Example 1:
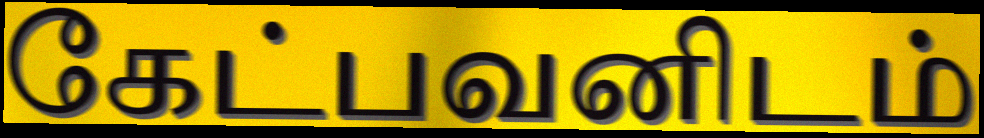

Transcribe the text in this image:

கேட்பவனிடம்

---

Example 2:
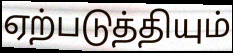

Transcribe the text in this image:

ஏற்படுத்தியும்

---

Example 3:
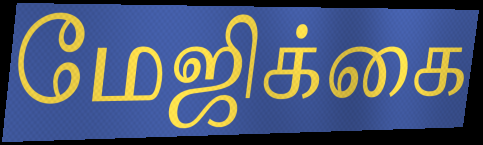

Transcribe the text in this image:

மேஜிக்கை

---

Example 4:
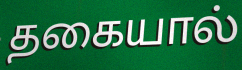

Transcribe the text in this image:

தகையால்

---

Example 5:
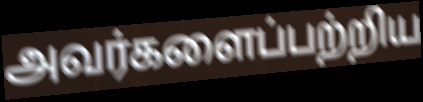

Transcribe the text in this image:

அவர்களைப்பற்றிய